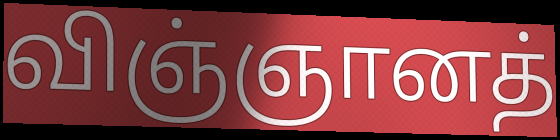
விஞ்ஞானத்